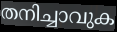
തനിച്ചാവുക